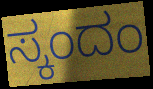
ಸ್ಕಂದಂ